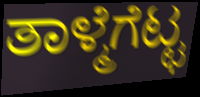
ತಾಳ್ಮೆಗೆಟ್ಟ